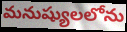
మనుష్యులలోను